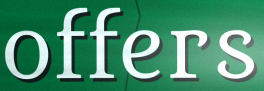
offers